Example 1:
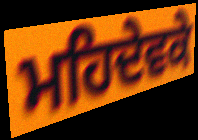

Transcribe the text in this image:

ਮਹਿਦੇਵਕੇ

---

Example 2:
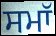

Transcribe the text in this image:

ਸਮਾੱ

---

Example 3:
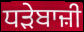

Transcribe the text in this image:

ਧੜੇਬਾਜ਼ੀ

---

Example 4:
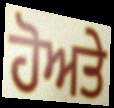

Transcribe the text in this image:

ਹੋਅਤੇ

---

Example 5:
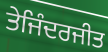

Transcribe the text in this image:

ਤੇਜਿੰਦਰਜੀਤ